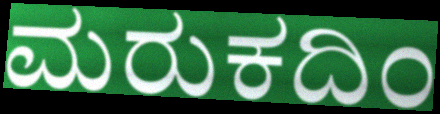
ಮರುಕದಿಂ